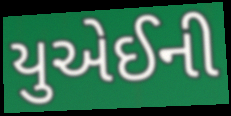
યુએઈની